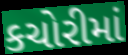
કચોરીમાં